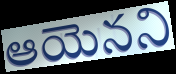
ఆయెనని